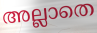
അല്ലാതെ